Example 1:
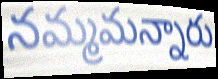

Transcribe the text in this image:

నమ్మమన్నారు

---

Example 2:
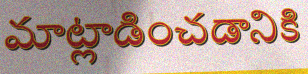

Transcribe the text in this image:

మాట్లాడించడానికి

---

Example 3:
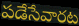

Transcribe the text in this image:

పడేసేవారట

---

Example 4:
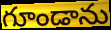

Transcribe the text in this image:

గూండాను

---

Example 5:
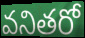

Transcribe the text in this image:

వనితరో